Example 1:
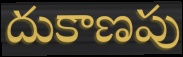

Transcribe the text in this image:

దుకాణపు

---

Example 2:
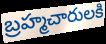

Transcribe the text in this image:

బ్రహ్మచారులకి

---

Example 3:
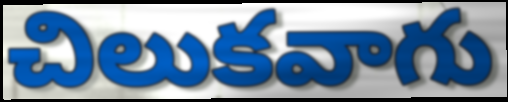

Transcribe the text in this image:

చిలుకవాగు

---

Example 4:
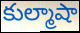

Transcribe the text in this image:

కుల్మాషా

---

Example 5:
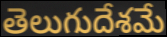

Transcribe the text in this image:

తెలుగుదేశమే